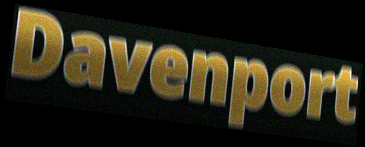
Davenport